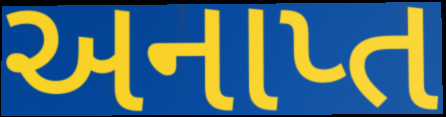
અનાપ્ત